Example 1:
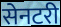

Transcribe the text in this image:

सेनटरी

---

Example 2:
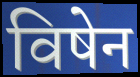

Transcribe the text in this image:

विषेन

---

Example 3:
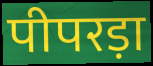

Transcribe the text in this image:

पीपरड़ा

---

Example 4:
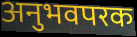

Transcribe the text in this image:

अनुभवपरक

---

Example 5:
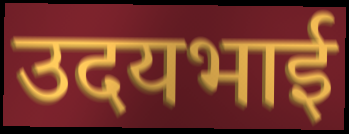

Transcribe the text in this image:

उदयभाई